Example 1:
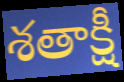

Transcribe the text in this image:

శతాక్షీ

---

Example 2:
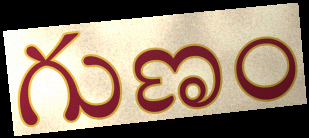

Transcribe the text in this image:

గుణం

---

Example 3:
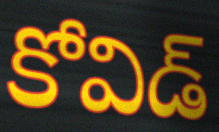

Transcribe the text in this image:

కోవిడ్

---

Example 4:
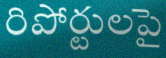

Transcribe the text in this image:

రిపోర్టులపై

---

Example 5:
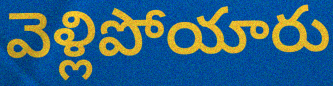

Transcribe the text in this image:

వెళ్లిపోయారు